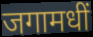
जगामधीं